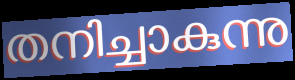
തനിച്ചാകുന്നു